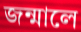
জন্মালে